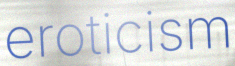
eroticism